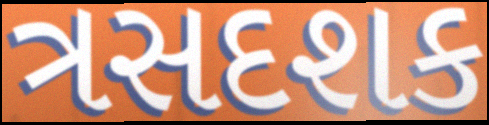
ત્રસદશક